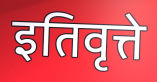
इतिवृत्ते